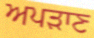
ਅਪੜਾਣ